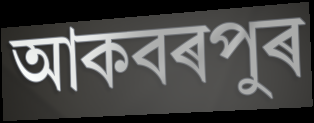
আকবৰপুৰ